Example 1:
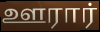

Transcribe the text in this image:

ஊரார்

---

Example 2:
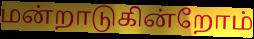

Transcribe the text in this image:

மன்றாடுகின்றோம்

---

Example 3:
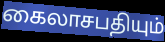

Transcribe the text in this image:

கைலாசபதியும்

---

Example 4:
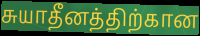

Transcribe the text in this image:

சுயாதீனத்திற்கான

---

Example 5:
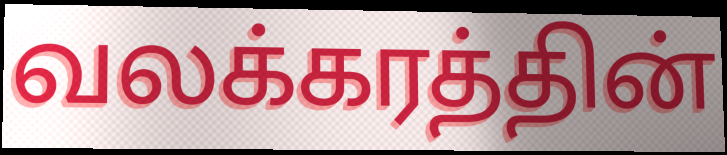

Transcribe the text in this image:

வலக்கரத்தின்